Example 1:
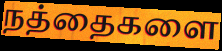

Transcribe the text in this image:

நத்தைகளை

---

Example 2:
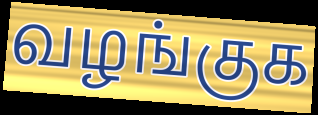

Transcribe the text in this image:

வழங்குக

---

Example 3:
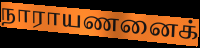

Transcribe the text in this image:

நாராயணனைக்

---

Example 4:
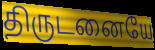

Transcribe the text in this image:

திருடனையே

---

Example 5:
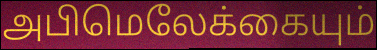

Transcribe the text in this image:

அபிமெலேக்கையும்